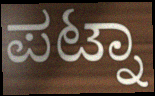
ಪಟ್ನಾ